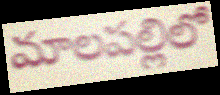
మాలపల్లిలో